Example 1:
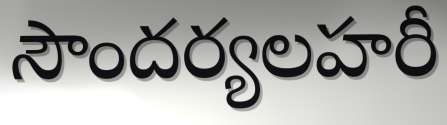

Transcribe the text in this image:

సౌందర్యలహరీ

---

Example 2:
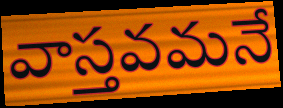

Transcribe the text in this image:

వాస్తవమనే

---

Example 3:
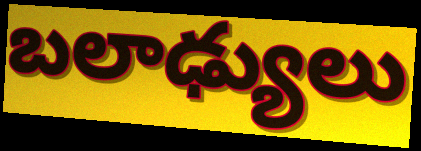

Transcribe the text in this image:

బలాఢ్యులు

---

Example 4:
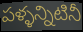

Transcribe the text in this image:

పళ్ళన్నిటినీ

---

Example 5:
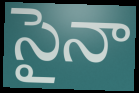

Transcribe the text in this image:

సైనా